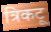
त्रिकटू